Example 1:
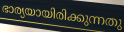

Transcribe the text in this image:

ഭാര്യയായിരിക്കുന്നതു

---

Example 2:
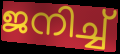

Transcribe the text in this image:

ജനിച്ച്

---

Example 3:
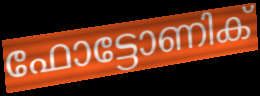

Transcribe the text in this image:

ഫോട്ടോണിക്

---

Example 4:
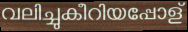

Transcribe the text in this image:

വലിച്ചുകീറിയപ്പോള്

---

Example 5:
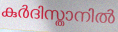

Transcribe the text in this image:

കുർദിസ്താനിൽ